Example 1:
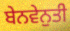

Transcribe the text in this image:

ਬੇਨਵੇਨੁਤੀ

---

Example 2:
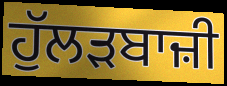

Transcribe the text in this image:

ਹੁੱਲੜਬਾਜ਼ੀ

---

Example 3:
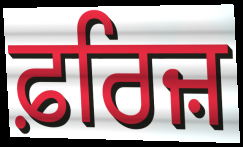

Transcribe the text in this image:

ਫ਼ਰਿਜ਼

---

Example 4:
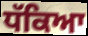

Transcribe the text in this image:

ਧੱਕਿਆ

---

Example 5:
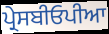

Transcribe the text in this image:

ਪ੍ਰੇਸਬੀਓਪੀਆ